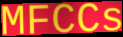
MFCCs